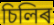
চিলিৰ